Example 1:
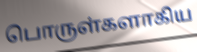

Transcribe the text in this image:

பொருள்களாகிய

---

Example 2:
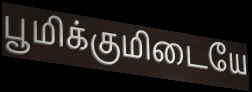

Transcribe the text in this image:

பூமிக்குமிடையே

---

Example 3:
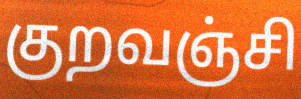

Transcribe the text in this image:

குறவஞ்சி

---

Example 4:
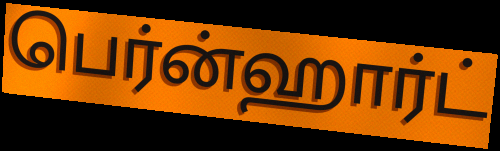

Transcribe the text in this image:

பெர்ன்ஹார்ட்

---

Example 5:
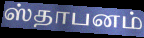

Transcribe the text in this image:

ஸ்தாபனம்